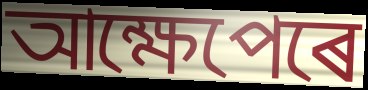
আক্ষেপেৰে